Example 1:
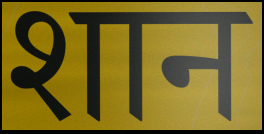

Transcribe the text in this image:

शान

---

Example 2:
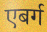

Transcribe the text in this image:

एबर्ग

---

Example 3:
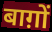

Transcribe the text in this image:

बाग़ों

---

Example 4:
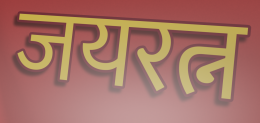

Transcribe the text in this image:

जयरत्न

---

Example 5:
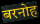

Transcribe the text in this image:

बरनोह